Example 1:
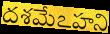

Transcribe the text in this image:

దశమేఽహని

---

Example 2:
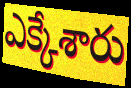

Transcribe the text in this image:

ఎక్కేశారు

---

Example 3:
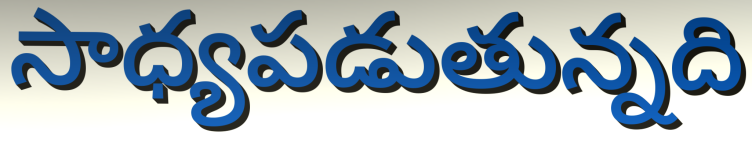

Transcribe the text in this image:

సాధ్యపడుతున్నది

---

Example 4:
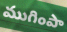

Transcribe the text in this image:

ముగింపా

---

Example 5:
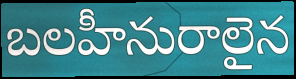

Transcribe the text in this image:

బలహీనురాలైన